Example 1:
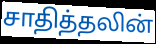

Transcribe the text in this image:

சாதித்தலின்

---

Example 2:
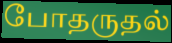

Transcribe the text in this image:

போதருதல்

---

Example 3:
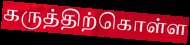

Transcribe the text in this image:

கருத்திற்கொள்ள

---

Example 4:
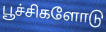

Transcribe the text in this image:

பூச்சிகளோடு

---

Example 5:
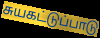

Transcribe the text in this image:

சுயகட்டுப்பாடு